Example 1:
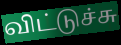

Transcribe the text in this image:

விட்டுச்சு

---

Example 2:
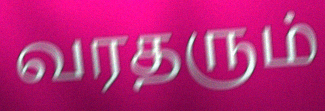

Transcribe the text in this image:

வரதரும்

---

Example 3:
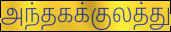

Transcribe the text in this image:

அந்தகக்குலத்து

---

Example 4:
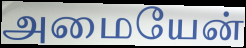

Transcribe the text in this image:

அமையேன்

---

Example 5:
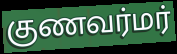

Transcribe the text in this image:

குணவர்மர்